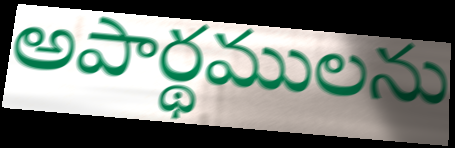
అపార్థములను